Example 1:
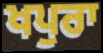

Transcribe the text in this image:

ਖਪੁਰਾ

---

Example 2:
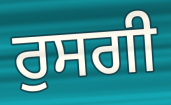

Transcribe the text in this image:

ਰੁਸਗੀ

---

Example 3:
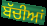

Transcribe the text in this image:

ਬੱਚੀਆਂ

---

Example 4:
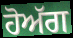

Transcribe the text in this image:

ਹੋਅੱਗ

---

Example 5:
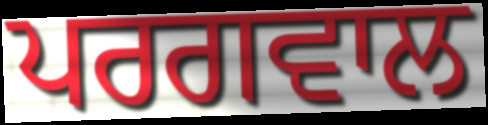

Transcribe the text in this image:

ਪਰਗਵਾਲ